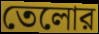
তেলোর